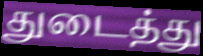
துடைத்து